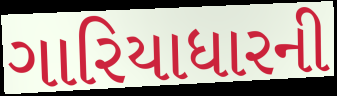
ગારિયાધારની